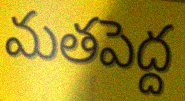
మతపెద్ద